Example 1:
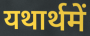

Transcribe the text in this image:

यथार्थमें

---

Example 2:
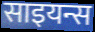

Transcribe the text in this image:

साइयन्स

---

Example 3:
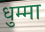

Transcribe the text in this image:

धुम्मा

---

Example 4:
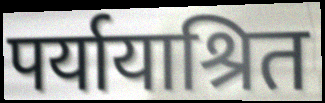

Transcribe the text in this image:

पर्यायाश्रित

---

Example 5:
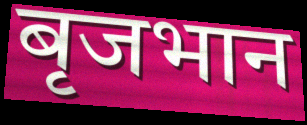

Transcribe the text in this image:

बृजभान